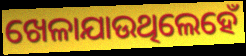
ଖେଳାଯାଉଥିଲେହେଁ